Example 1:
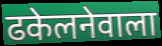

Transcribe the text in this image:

ढकेलनेवाला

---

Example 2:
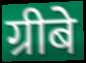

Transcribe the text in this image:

ग्रीबे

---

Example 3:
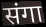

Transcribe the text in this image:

संगा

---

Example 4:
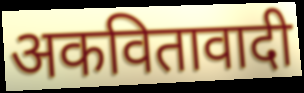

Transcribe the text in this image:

अकवितावादी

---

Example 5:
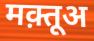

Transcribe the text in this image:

मक़्तूअ